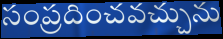
సంప్రదించవచ్చును